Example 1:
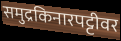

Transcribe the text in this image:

समुद्रकिनारपट्टीवर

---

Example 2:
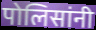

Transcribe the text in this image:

पोलिसांनी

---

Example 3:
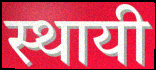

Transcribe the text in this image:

स्थायी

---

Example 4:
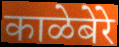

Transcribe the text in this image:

काळेबेरे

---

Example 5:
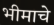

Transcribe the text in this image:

भीमाचे